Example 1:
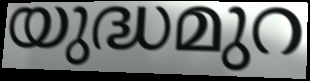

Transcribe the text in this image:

യുദ്ധമുറ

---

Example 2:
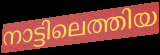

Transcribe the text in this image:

നാട്ടിലെത്തിയ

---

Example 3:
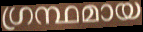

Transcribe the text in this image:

ഗ്രന്ഥമായ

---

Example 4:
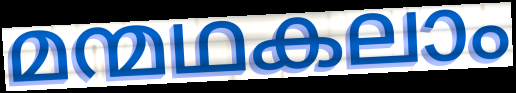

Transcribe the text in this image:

മന്മഥകലാം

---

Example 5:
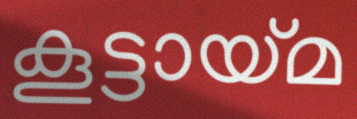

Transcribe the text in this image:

കൂട്ടായ്മ